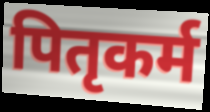
पितृकर्म